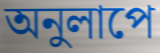
অনুলাপে